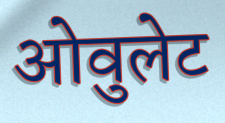
ओवुलेट